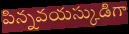
పిన్నవయస్కుడిగా